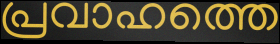
പ്രവാഹത്തെ